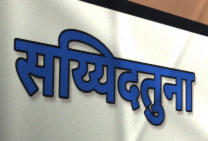
सय्यिदतुना